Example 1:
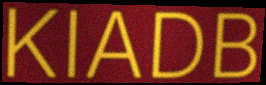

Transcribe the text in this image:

KIADB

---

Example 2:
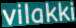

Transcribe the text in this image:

vilakki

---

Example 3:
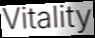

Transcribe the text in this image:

Vitality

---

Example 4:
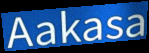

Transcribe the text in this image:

Aakasa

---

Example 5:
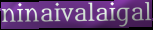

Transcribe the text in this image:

ninaivalaigal